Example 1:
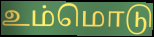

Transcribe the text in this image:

உம்மொடு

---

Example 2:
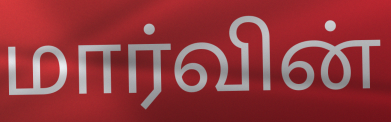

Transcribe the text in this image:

மார்வின்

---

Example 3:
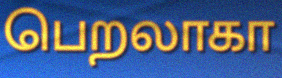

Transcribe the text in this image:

பெறலாகா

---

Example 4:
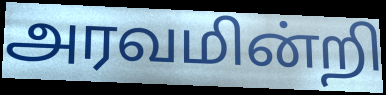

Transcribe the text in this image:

அரவமின்றி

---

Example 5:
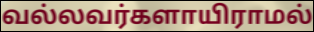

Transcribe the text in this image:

வல்லவர்களாயிராமல்